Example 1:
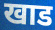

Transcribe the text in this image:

खाड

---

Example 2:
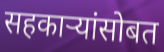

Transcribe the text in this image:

सहकाऱ्यांसोबत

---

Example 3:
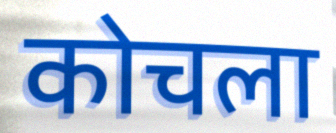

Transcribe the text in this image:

कोचला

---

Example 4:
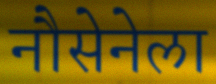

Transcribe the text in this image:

नौसेनेला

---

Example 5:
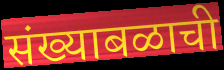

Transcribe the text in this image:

संख्याबळाची